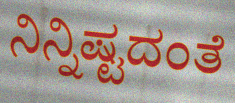
ನಿನ್ನಿಷ್ಟದಂತೆ